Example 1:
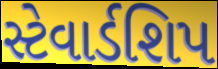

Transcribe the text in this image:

સ્ટેવાર્ડશિપ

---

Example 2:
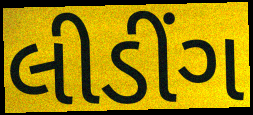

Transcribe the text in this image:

લીડીંગ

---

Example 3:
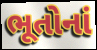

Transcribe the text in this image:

ભૂતોનાં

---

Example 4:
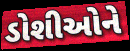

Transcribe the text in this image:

ડોશીઓને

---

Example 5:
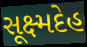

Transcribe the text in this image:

સૂક્ષ્મદેહ